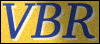
VBR